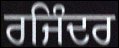
ਰਜਿੰਦਰ